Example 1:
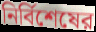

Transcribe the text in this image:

নির্বিশেষের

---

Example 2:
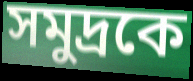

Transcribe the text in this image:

সমুদ্রকে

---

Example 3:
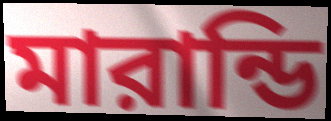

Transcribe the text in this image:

মারান্ডি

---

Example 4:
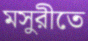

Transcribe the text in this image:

মসুরীতে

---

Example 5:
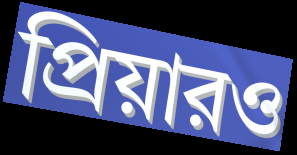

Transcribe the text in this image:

প্রিয়ারও